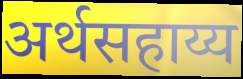
अर्थसहाय्य